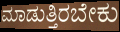
ಮಾಡುತ್ತಿರಬೇಕು